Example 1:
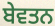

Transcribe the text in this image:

ਬੇਵਤਨ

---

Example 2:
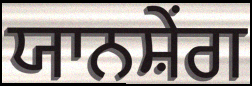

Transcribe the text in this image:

ਯਾਨਸ਼ੇਂਗ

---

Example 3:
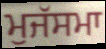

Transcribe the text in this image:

ਮੁਜੱਸਮਾ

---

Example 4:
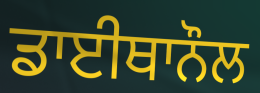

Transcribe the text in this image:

ਡਾਈਥਾਨੌਲ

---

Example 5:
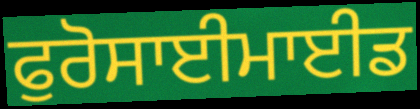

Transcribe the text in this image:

ਫੁਰੋਸਾਈਮਾਈਡ